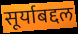
सूर्याबद्दल